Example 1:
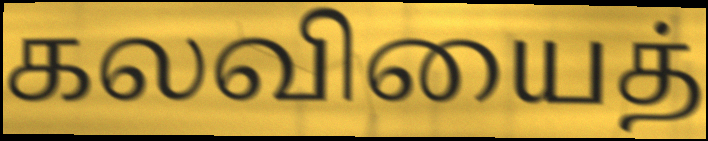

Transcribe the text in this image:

கலவியைத்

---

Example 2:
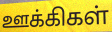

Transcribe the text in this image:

ஊக்கிகள்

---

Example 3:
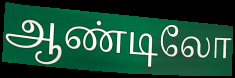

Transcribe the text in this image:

ஆண்டிலோ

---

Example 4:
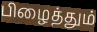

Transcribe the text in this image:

பிழைத்தும்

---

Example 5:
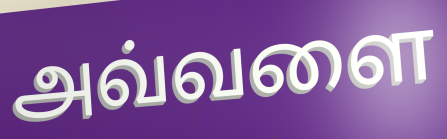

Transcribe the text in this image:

அவ்வளை